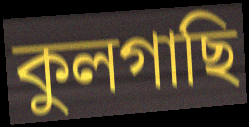
কুলগাছি